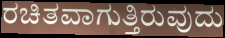
ರಚಿತವಾಗುತ್ತಿರುವುದು